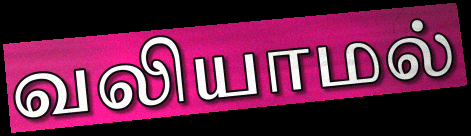
வலியாமல்